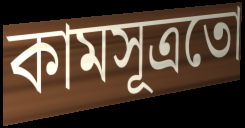
কামসূত্ৰতো